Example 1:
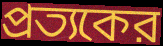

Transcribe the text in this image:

প্রত্যকের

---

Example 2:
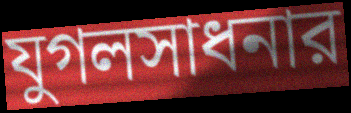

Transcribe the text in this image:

যুগলসাধনার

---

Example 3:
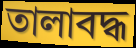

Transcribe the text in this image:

তালাবদ্ধ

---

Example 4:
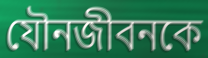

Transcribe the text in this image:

যৌনজীবনকে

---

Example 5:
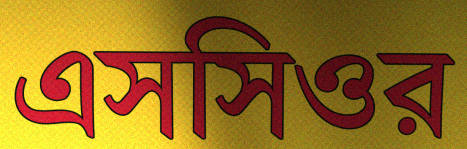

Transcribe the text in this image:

এসসিওর